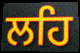
ਲਹਿ